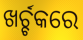
ଖର୍ଚ୍ଚକରେ